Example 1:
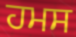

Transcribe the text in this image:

ਹਮਸ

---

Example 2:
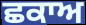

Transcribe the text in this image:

ਛਕਾਅ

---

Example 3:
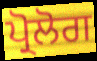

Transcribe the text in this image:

ਪ੍ਰੋਲੋਗ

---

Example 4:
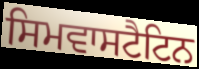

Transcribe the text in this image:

ਸਿਮਵਾਸਟੈਟਿਨ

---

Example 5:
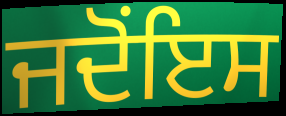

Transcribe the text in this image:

ਜਦੋਂਇਸ